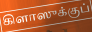
கிளாஸுக்குப்